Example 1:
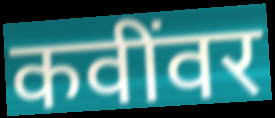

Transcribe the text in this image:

कवींवर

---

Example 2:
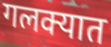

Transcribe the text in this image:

गलक्यात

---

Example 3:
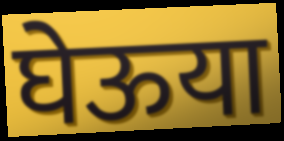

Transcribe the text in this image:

घेऊया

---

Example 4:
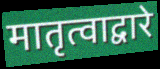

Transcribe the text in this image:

मातृत्वाद्वारे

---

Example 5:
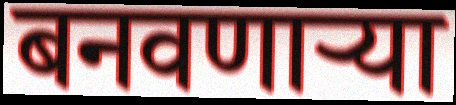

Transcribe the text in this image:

बनवणार्‍या